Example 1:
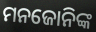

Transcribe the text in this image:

ମନଜୋନିଙ୍କ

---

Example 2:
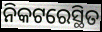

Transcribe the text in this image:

ନିକଟରେସ୍ଥିତ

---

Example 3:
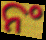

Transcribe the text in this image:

ନଂ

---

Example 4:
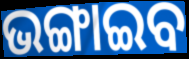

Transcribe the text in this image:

ଭଙ୍ଗାଇବ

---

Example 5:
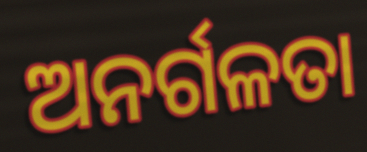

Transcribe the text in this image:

ଅନର୍ଗଳତା